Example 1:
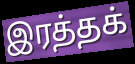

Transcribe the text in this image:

இரத்தக்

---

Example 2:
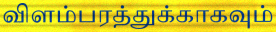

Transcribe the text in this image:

விளம்பரத்துக்காகவும்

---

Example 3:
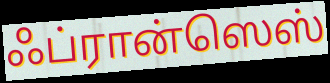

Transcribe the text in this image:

ஃப்ரான்ஸெஸ்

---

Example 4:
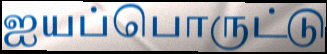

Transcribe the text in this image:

ஐயப்பொருட்டு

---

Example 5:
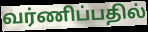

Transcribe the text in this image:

வர்ணிப்பதில்